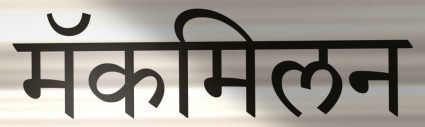
मॅकमिलन